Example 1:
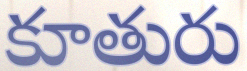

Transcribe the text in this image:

కూతురు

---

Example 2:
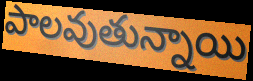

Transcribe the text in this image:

పాలవుతున్నాయి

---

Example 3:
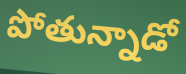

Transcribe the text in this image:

పోతున్నాడో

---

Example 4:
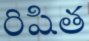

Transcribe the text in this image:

రిషిత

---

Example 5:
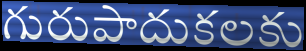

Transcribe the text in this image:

గురుపాదుకలకు